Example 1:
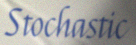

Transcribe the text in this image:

Stochastic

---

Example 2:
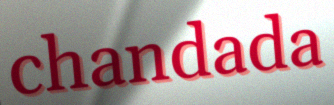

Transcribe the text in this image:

chandada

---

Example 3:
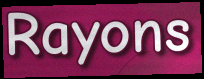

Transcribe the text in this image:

Rayons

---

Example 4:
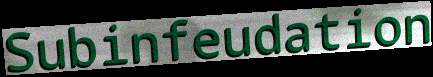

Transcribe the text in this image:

Subinfeudation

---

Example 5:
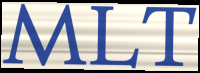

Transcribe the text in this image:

MLT